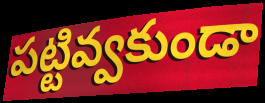
పట్టివ్వకుండా